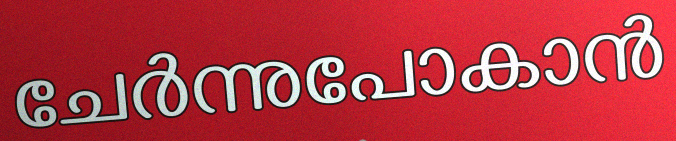
ചേർന്നുപോകാൻ